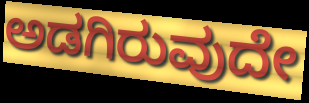
ಅಡಗಿರುವುದೇ